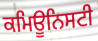
ਕਮਿਊਨਿਸਟੀ